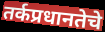
तर्कप्रधानतेचे